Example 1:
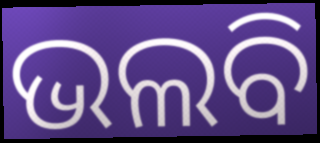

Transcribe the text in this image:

ଭଲବି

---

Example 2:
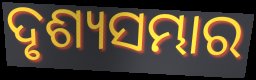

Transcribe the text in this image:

ଦୃଶ୍ୟସମ୍ଭାର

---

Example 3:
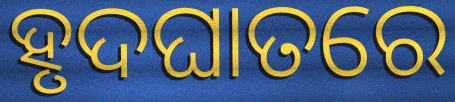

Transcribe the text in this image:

ହୃଦଘାତରେ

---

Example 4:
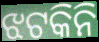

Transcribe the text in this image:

ଝଟକିନି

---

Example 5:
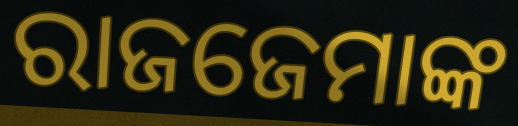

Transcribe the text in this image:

ରାଜଜେମାଙ୍କ